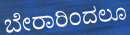
ಬೇರಾರಿಂದಲೂ